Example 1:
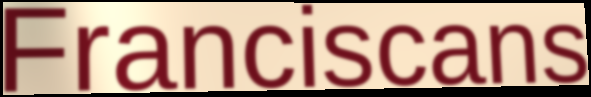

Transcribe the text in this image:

Franciscans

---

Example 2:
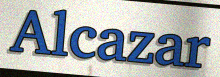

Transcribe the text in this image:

Alcazar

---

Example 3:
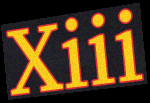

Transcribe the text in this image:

Xiii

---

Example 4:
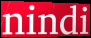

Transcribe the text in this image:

nindi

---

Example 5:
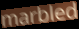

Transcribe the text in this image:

marbled